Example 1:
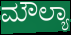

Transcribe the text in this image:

ಮೌಲ್ಯಾ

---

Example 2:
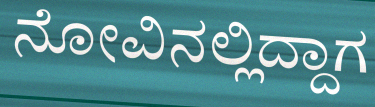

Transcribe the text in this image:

ನೋವಿನಲ್ಲಿದ್ದಾಗ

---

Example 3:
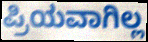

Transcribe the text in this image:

ಪ್ರಿಯವಾಗಿಲ್ಲ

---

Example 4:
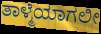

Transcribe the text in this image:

ತಾಳ್ಮೆಯಾಗಲೀ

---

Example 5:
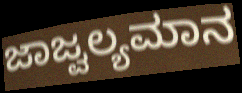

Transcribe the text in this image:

ಜಾಜ್ವಲ್ಯಮಾನ